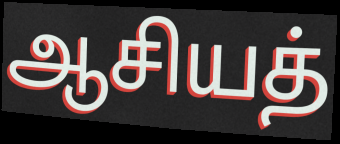
ஆசியத்